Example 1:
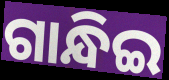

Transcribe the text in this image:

ଗାନ୍ଧିଇ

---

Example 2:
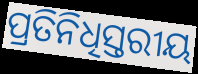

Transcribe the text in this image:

ପ୍ରତିନିଧିସ୍ତରୀୟ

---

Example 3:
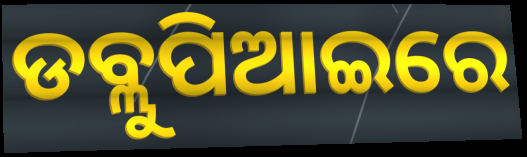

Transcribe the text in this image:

ଡବ୍ଲୁପିଆଇରେ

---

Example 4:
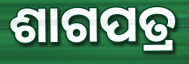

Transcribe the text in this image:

ଶାଗପତ୍ର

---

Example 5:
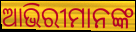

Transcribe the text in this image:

ଆଭିରୀମାନଙ୍କ